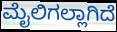
ಮೈಲಿಗಲ್ಲಾಗಿದೆ